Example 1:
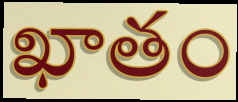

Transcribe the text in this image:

ఖాతం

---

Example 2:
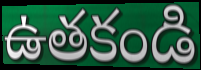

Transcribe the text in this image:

ఉతకండి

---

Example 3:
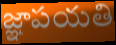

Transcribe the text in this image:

జ్ఞాపయతి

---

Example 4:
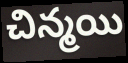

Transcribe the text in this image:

చిన్మయి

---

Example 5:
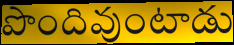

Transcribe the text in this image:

పొందివుంటాడు